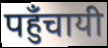
पहुँचायी